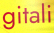
gitali